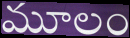
మూలం